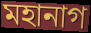
মহানাগ